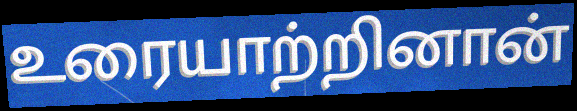
உரையாற்றினான்